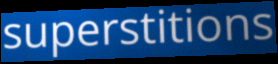
superstitions